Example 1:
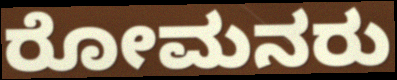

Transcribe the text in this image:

ರೋಮನರು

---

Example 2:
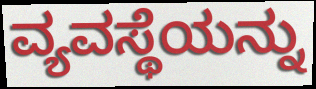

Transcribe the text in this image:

ವ್ಯವಸ್ಥೆಯನ್ನು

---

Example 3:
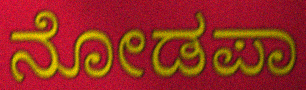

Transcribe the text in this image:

ನೋಡಪಾ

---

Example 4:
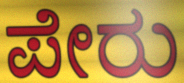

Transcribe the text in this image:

ಪೇರು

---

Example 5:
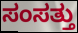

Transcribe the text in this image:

ಸಂಸತ್ತು